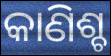
କାଣିଶ୍ଚ